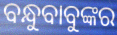
ବନ୍ଧୁବାବୁଙ୍କର